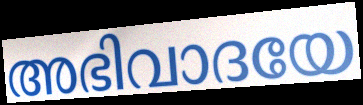
അഭിവാദയേ